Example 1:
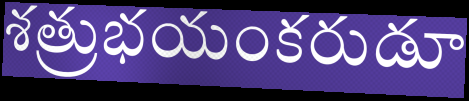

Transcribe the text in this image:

శత్రుభయంకరుడూ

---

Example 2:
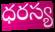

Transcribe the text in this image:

ధరస్య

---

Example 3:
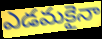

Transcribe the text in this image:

ఎడమకైనా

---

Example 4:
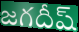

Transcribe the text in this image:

జగదీష్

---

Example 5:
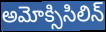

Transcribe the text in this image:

అమోక్సిసిలిన్